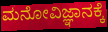
ಮನೋವಿಜ್ಞಾನಕ್ಕೆ